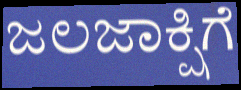
ಜಲಜಾಕ್ಷಿಗೆ